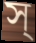
স্